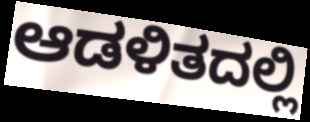
ಆಡಳಿತದಲ್ಲಿ